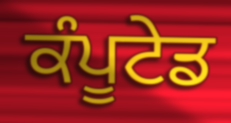
ਕੰਪੂਟੇਡ